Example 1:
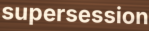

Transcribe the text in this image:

supersession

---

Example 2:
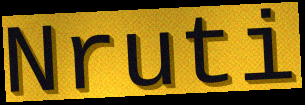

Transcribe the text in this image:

Nruti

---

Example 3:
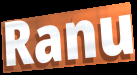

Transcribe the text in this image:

Ranu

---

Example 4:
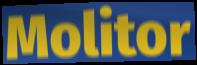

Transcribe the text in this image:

Molitor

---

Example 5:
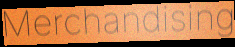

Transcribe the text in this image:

Merchandising